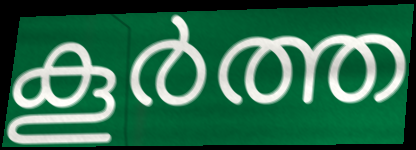
കൂർത്ത